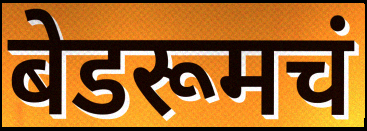
बेडरूमचं